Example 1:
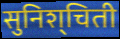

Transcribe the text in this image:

सुनिश्चिती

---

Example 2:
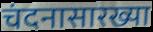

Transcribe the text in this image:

चंदनासारख्या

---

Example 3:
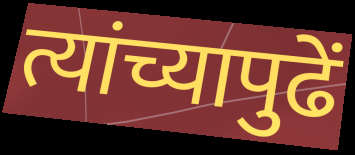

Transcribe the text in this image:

त्यांच्यापुढें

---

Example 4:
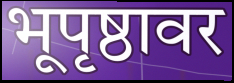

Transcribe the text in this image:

भूपृष्ठावर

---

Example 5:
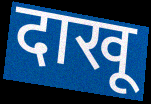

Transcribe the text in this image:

दाखू